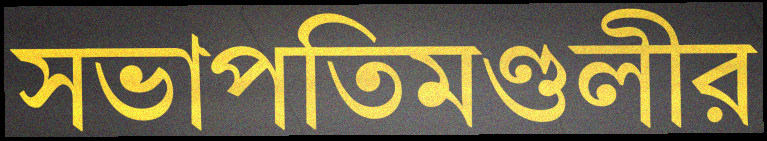
সভাপতিমণ্ডলীর